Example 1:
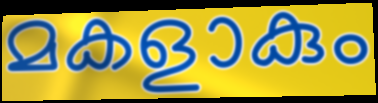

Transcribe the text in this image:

മകളാകും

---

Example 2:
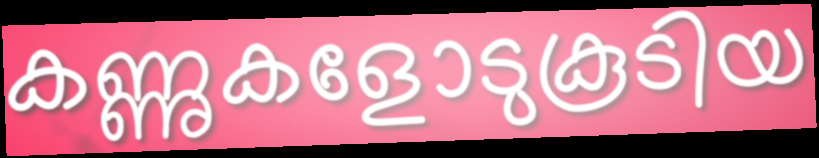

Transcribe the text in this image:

കണ്ണുകളോടുകൂടിയ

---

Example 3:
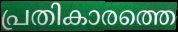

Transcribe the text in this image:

പ്രതികാരത്തെ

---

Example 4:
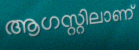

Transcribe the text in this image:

ആഗസ്റ്റിലാണ്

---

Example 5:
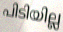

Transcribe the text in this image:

പിടിയില്ല